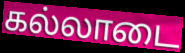
கல்லாடை